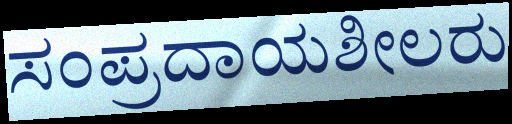
ಸಂಪ್ರದಾಯಶೀಲರು